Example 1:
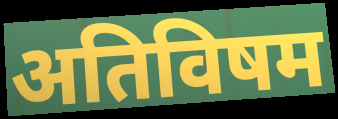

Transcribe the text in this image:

अतिविषम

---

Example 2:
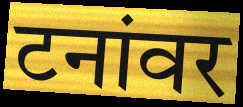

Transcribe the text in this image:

टनांवर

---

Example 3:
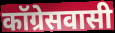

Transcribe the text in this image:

कॉग्रेसवासी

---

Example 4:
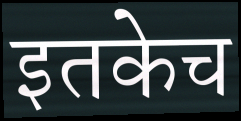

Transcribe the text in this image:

इतकेच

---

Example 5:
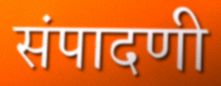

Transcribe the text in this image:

संपादणी